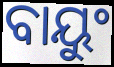
ବାୟୁଂ